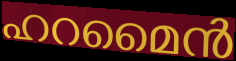
ഹറമൈൻ